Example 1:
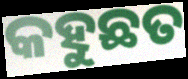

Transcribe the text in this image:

କହୁଛତ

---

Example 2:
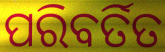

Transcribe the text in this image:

ପରିବର୍ତିତ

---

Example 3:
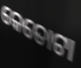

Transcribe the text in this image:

କେତୋଟା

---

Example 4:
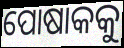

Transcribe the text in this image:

ପୋଷାକକୁ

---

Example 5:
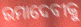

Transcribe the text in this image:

ରମାଦେବୀକୁ